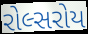
રોલ્સરોય